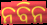
ନବିନ